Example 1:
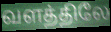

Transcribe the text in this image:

வளத்திலே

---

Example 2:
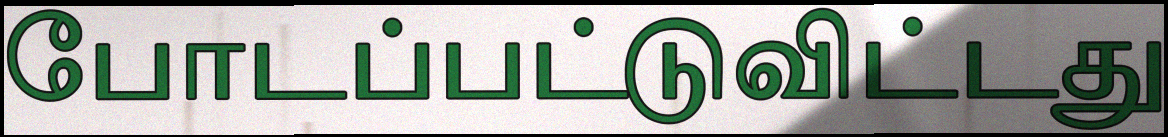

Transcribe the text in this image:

போடப்பட்டுவிட்டது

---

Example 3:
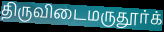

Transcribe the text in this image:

திருவிடைமருதூர்க்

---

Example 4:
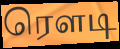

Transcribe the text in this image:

ரெளடி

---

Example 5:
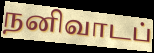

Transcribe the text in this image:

நனிவாடப்